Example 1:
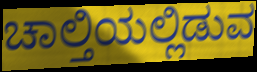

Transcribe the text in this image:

ಚಾಲ್ತಿಯಲ್ಲಿಡುವ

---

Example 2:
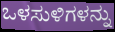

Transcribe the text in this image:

ಒಳಸುಳಿಗಳನ್ನು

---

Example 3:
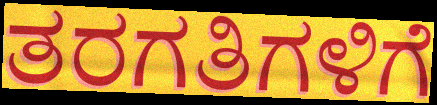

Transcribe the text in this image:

ತರಗತಿಗಳಿಗೆ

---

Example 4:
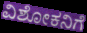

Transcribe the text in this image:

ವಿಶೋಕನಿಗೆ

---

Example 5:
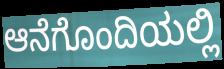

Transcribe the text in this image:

ಆನೆಗೊಂದಿಯಲ್ಲಿ